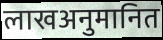
लाखअनुमानित